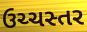
ઉચ્ચસ્તર